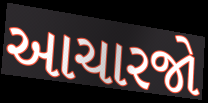
આચારજો